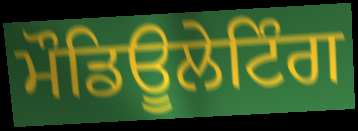
ਮੌਡਿਊਲੇਟਿੰਗ